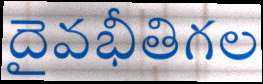
దైవభీతిగల